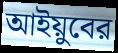
আইয়ুবের